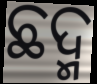
ଛଦ୍ମ